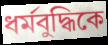
ধর্মবুদ্ধিকে